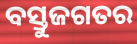
ବସ୍ତୁଜଗତର